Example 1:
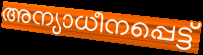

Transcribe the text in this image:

അന്യാധീനപ്പെട്ട്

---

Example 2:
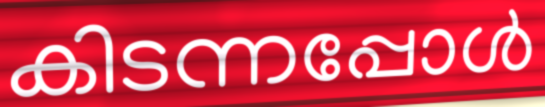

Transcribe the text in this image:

കിടന്നപ്പോൾ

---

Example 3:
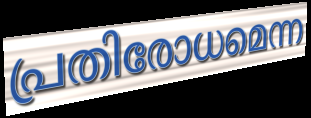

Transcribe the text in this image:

പ്രതിരോധമെന്ന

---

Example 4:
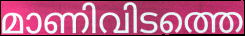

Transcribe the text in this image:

മാണിവിടത്തെ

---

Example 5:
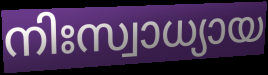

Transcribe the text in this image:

നിഃസ്വാധ്യായ